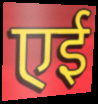
एई